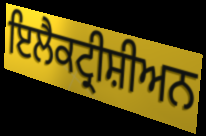
ਇਲੈਕਟ੍ਰੀਸ਼ੀਅਨ